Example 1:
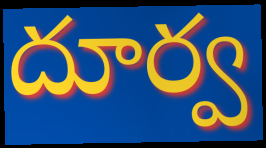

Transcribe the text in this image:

దూర్వ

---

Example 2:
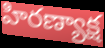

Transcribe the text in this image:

హిరణ్యాక్ష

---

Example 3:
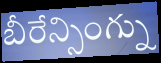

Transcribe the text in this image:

బీరేన్సింగ్ను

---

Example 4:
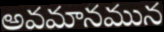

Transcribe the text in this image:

అవమానమున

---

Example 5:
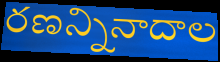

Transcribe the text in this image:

రణన్నినాదాల